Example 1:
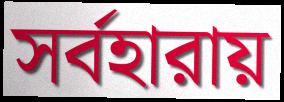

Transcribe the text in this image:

সর্বহারায়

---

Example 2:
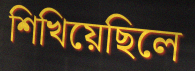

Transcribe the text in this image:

শিখিয়েছিলে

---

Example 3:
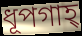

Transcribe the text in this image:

ধূপগাহ্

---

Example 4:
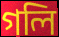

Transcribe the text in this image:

গলি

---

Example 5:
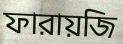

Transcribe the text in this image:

ফারায়জি